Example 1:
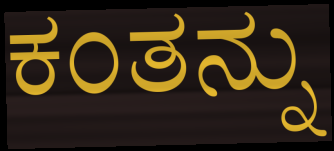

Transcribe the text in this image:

ಕಂತನ್ನು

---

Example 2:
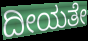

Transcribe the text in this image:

ದೀಯತೇ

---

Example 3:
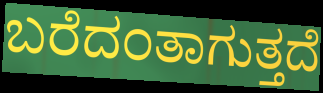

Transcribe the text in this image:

ಬರೆದಂತಾಗುತ್ತದೆ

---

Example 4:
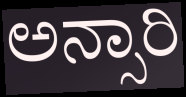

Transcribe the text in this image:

ಅನ್ಸಾರಿ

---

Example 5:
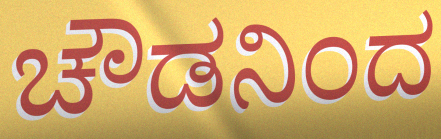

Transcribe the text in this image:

ಚೌಡನಿಂದ